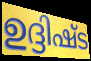
ഉദ്ദിഷ്ട